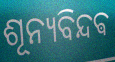
ଶୂନ୍ଯବିନ୍ଦଵ